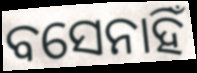
ବସେନାହିଁ